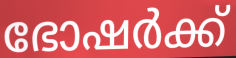
ഭോഷർക്ക്